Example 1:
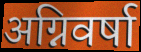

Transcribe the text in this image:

अग्निवर्षा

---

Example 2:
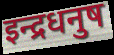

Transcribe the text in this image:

इन्द्रधनुष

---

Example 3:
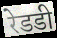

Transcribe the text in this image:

रेडडी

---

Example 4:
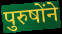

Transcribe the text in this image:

पुरुषोंने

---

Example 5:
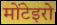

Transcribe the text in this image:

मोंटेइरो